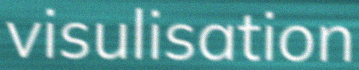
visulisation